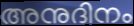
അനുദിനം